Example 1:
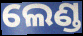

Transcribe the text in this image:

ଲେଣ୍ଡ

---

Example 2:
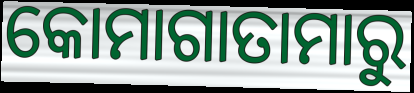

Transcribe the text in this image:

କୋମାଗାତାମାରୁ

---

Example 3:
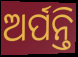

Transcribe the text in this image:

ଅର୍ପନ୍ତି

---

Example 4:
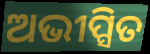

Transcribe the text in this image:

ଅଭୀପ୍ସିତ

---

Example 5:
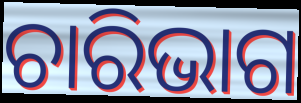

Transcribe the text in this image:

ଚାରିଭାଗ